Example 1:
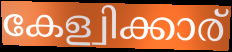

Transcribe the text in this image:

കേള്വിക്കാര്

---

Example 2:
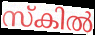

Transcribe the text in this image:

സ്കിൽ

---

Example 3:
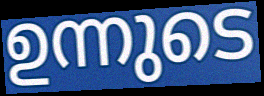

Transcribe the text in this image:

ഉന്നുടെ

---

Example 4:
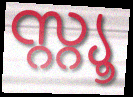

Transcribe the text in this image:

സ്റ്റ്യൂ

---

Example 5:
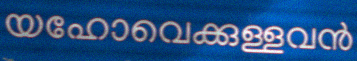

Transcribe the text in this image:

യഹോവെക്കുള്ളവൻ